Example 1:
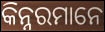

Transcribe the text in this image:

କିନ୍ନରମାନେ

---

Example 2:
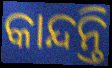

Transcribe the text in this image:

କାନ୍ଦନ୍ତି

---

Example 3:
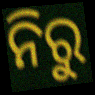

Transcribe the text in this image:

ନିରୁ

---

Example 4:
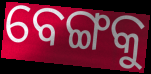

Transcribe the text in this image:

ବେଙ୍ଗକୁ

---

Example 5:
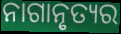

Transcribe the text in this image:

ନାଗାନୃତ୍ୟର